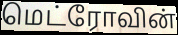
மெட்ரோவின்